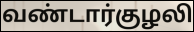
வண்டார்குழலி